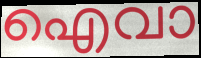
ഐവാ